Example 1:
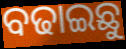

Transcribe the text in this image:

ବଢାଇଛୁ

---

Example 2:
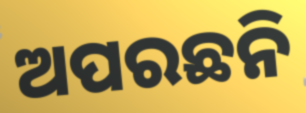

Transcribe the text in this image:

ଅପରଛନି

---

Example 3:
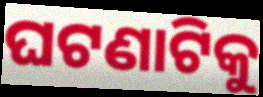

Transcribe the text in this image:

ଘଟଣାଟିକୁ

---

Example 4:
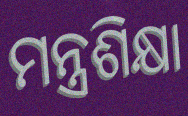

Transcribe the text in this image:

ମନ୍ତ୍ରଶିକ୍ଷା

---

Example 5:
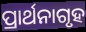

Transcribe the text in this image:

ପ୍ରାର୍ଥନାଗୃହ